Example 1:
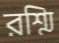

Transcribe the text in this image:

রশ্মি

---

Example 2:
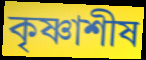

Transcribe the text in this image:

কৃষ্ণাশীষ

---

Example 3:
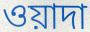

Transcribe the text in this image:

ওয়াদা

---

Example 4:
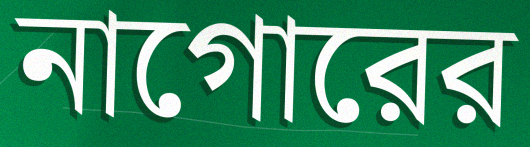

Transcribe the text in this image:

নাগোরের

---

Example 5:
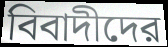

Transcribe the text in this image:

বিবাদীদের